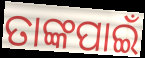
ତାଙ୍କପାଇଁ